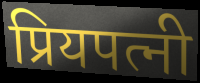
प्रियपत्नी